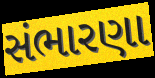
સંભારણા